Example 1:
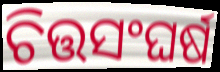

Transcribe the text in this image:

ଚିତ୍ତସଂଘର୍ଷ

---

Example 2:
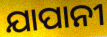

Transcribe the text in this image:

ଯାପାନୀ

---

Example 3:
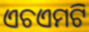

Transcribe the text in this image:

ଏଚଏମଟି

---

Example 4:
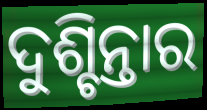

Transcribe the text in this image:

ଦୁଶ୍ଚିନ୍ତାର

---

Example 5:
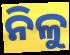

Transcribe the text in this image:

ନିଳୁ